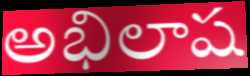
అభిలాష